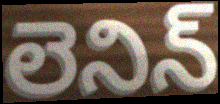
లెనిన్